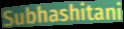
Subhashitani